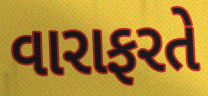
વારાફરતે